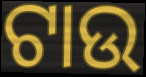
ଟାଉ